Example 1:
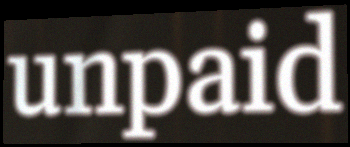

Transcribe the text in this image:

unpaid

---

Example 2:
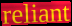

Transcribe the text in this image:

reliant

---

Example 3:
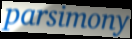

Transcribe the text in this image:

parsimony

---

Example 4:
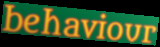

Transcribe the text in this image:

behaviour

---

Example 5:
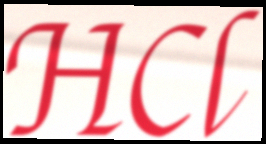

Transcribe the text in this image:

HCl